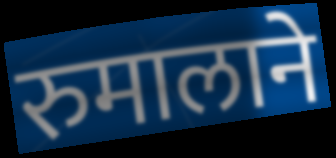
रुमालाने